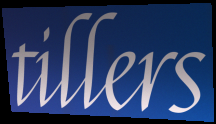
tillers